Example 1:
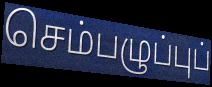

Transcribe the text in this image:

செம்பழுப்புப்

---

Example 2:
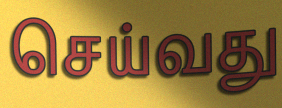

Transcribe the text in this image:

செய்வது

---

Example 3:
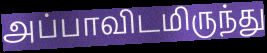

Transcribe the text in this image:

அப்பாவிடமிருந்து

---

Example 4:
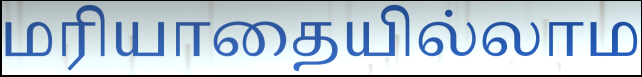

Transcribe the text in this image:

மரியாதையில்லாம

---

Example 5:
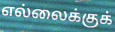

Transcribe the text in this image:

எல்லைக்குக்